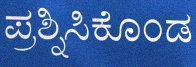
ಪ್ರಶ್ನಿಸಿಕೊಂಡ